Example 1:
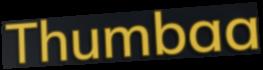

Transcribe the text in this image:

Thumbaa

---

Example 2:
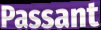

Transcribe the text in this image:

Passant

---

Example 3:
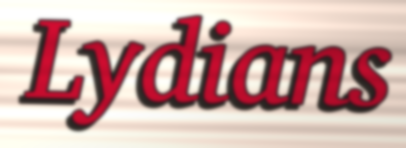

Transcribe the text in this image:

Lydians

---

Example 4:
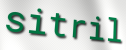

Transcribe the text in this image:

sitril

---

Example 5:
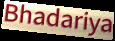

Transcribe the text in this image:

Bhadariya